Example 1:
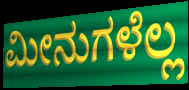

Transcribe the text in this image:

ಮೀನುಗಳೆಲ್ಲ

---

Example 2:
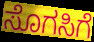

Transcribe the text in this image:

ಸೊಗಸಿಗೆ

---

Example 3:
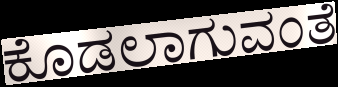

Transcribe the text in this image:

ಕೊಡಲಾಗುವಂತೆ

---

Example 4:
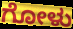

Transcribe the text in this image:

ಗೋಳು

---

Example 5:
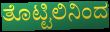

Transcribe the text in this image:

ತೊಟ್ಟಿಲಿನಿಂದ